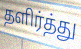
தளிர்த்து